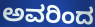
ಅವರಿಂದ